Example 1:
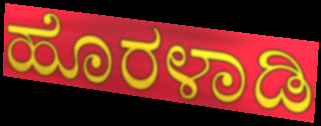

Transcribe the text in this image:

ಹೊರಳಾಡಿ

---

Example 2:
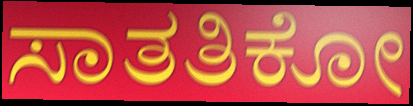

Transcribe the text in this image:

ಸಾತತಿಕೋ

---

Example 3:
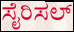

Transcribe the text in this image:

ಸೈರಿಸಲ್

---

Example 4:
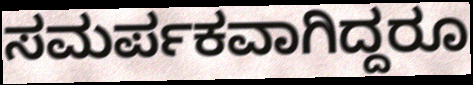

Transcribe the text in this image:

ಸಮರ್ಪಕವಾಗಿದ್ದರೂ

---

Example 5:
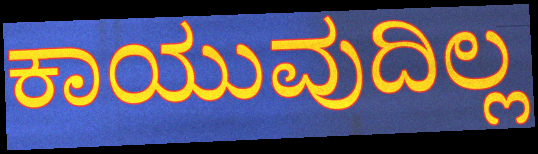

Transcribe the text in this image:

ಕಾಯುವುದಿಲ್ಲ